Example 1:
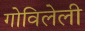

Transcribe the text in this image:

गोविलेली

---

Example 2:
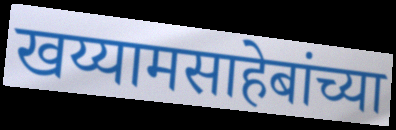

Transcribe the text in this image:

खय्यामसाहेबांच्या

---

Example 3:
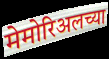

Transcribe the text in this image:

मेमोरिअलच्या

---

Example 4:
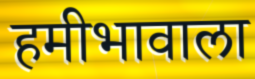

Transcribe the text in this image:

हमीभावाला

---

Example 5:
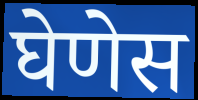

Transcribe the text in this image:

घेणेस